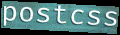
postcss